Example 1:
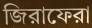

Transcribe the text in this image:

জিরাফেরা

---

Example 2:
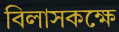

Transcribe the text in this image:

বিলাসকক্ষে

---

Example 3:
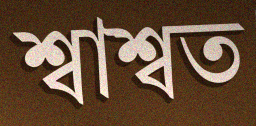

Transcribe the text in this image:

শ্বাশ্বত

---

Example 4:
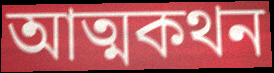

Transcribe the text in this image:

আত্মকথন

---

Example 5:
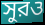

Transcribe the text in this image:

সুরও